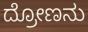
ದ್ರೋಣನು